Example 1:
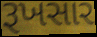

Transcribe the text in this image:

રૂખસાર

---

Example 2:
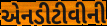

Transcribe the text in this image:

એનડીટીવીની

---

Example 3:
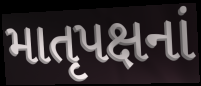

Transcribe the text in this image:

માતૃપક્ષનાં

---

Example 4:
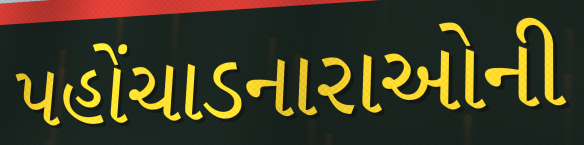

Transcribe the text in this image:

પહોંચાડનારાઓની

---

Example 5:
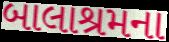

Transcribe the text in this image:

બાલાશ્રમના